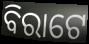
ବିରାଟେ